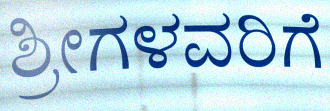
ಶ್ರೀಗಳವರಿಗೆ